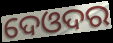
ଦେଓଦର